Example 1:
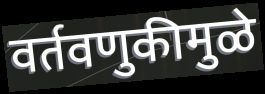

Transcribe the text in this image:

वर्तवणुकीमुळे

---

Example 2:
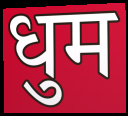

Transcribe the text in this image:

धुम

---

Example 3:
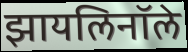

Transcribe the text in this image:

झायलिनॉले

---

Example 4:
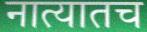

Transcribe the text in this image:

नात्यातच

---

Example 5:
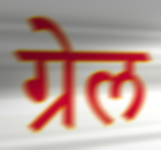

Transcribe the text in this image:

ग्रेल